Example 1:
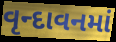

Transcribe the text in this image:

વૃન્દાવનમાં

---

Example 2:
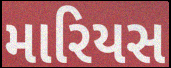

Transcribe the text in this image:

મારિયસ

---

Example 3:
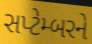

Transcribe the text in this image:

સપ્ટેમ્બરને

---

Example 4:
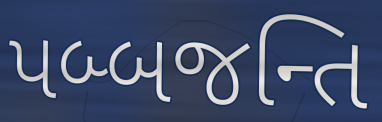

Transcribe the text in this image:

પબ્બજન્તિ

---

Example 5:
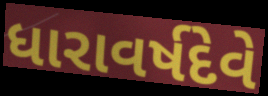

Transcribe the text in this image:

ધારાવર્ષદેવે